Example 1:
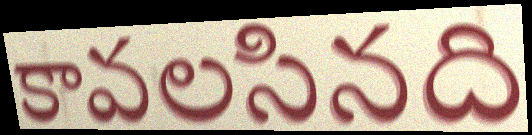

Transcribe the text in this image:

కావలసినది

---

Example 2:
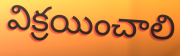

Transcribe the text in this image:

విక్రయించాలి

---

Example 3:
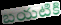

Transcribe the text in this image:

బయటికి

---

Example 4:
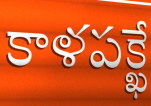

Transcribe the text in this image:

కాళపక్ఖే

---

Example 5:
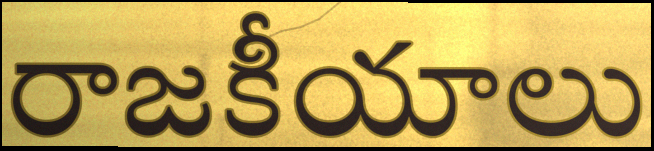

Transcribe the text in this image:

రాజకీయాలు